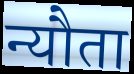
न्यौता